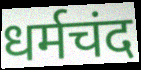
धर्मचंद